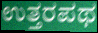
ಉತ್ತರಪಥ